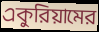
একুরিয়ামের